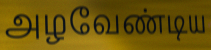
அழவேண்டிய